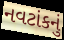
નવટાંકનું